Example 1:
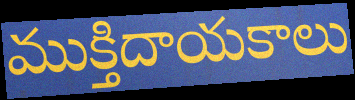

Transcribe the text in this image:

ముక్తిదాయకాలు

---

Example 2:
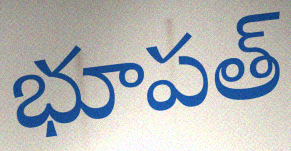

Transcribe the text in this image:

భూపత్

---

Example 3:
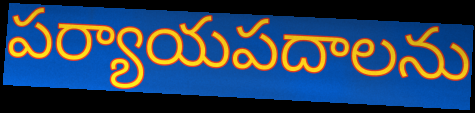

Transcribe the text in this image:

పర్యాయపదాలను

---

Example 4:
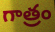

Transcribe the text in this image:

గాత్రం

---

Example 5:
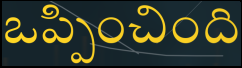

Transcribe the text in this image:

ఒప్పించింది